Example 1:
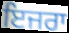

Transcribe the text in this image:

ਇਜਰਾ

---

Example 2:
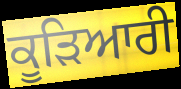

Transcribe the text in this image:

ਕੂੜਿਆਰੀ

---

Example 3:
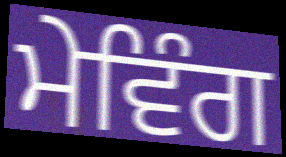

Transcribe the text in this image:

ਮੇਵਿੰਗ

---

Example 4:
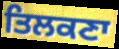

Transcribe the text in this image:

ਤਿਲਕਣਾ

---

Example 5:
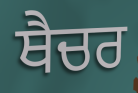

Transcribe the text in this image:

ਥੈਚਰ